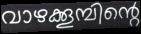
വാഴക്കൂമ്പിന്റെ